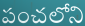
పంచలోని